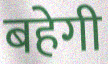
बहेगी